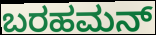
ಬರಹಮನ್